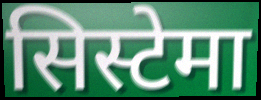
सिस्टेमा